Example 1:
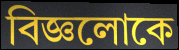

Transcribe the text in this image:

বিজ্ঞলোকে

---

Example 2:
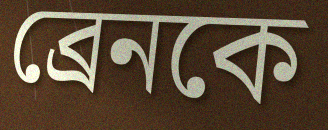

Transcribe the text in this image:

ব্রেনকে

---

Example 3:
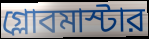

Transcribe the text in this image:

গ্লোবমাস্টার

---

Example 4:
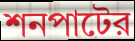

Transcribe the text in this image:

শনপাটের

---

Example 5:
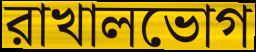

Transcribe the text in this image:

রাখালভোগ